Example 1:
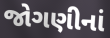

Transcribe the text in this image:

જોગણીનાં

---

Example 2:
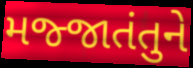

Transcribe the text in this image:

મજ્જાતંતુને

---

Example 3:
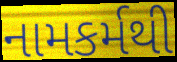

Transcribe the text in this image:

નામકર્મથી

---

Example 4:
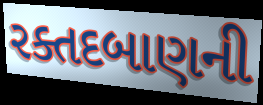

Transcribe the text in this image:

રક્તદબાણની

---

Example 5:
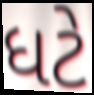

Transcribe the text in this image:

ધટે